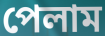
পেলাম